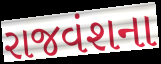
રાજવંશના